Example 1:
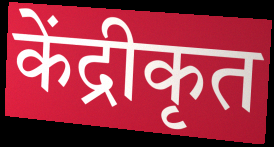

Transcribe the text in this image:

केंद्रीकृत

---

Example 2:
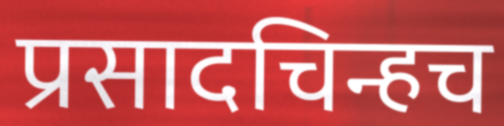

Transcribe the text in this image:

प्रसादचिन्हच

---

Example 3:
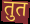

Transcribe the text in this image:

तुत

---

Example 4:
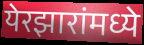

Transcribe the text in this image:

येरझारांमध्ये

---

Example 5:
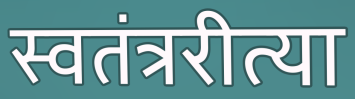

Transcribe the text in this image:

स्वतंत्ररीत्या